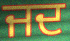
ਜਦ